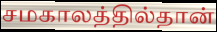
சமகாலத்தில்தான்